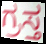
ಗ್ರಸ್ತ